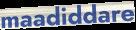
maadiddare